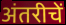
अंतरीचें